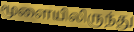
மூளையிலிருந்து